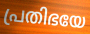
പ്രതിഭയേ